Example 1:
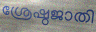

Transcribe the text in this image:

ശ്രേഷ്ഠജാതി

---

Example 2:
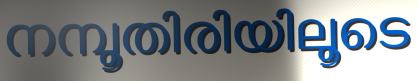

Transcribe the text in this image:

നമ്പൂതിരിയിലൂടെ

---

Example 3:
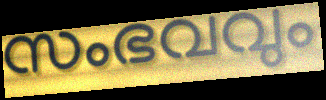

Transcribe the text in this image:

സംഭവവും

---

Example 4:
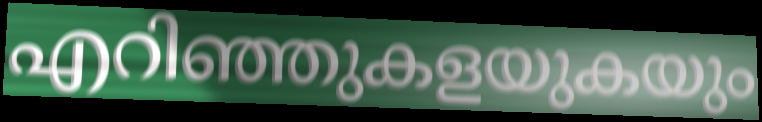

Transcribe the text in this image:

എറിഞ്ഞുകളയുകയും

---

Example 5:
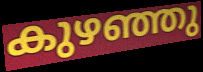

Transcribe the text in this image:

കുഴഞ്ഞു